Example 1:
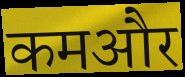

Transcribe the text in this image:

कमऔर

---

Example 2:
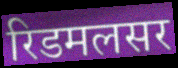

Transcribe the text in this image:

रिडमलसर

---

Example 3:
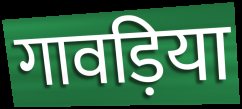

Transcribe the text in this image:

गावड़िया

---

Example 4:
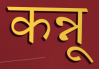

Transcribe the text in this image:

कन्नू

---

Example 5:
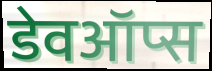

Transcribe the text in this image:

डेवऑप्स